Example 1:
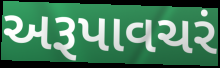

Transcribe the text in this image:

અરૂપાવચરં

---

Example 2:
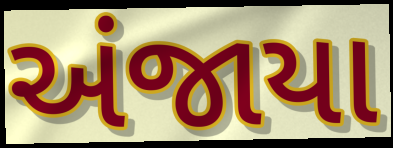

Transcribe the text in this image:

અંજાયા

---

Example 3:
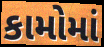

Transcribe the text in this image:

કામોમાં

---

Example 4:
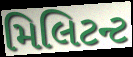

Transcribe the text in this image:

મિલિટન્ટ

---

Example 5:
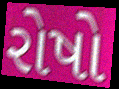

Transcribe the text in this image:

રોષો